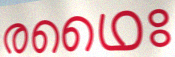
രഥൈഃ